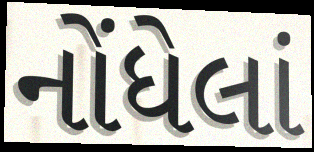
નોંધેલાં